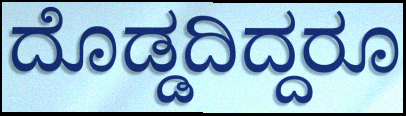
ದೊಡ್ಡದಿದ್ದರೂ